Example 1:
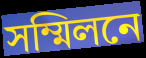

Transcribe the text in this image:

সম্মিলনে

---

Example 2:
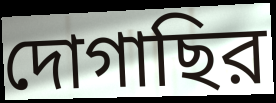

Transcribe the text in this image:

দোগাছির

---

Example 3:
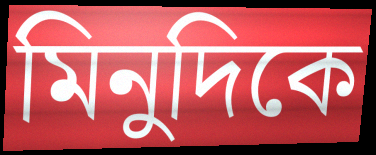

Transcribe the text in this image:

মিনুদিকে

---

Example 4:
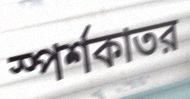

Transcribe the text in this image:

স্পর্শকাতর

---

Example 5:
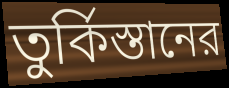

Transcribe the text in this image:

তুর্কিস্তানের